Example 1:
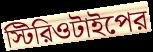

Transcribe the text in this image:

স্টিরিওটাইপের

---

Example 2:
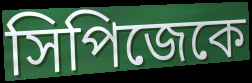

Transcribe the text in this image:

সিপিজেকে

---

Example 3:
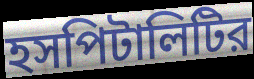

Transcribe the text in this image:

হসপিটালিটির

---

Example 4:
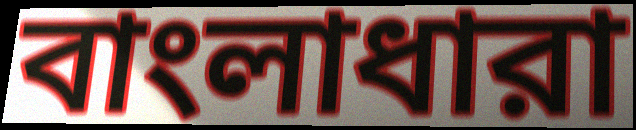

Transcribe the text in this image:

বাংলাধারা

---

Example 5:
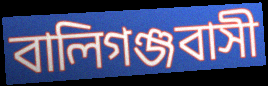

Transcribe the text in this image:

বালিগঞ্জবাসী